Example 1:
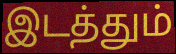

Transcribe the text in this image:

இடத்தும்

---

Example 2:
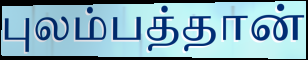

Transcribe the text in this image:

புலம்பத்தான்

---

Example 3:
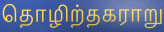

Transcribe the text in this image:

தொழிற்தகராறு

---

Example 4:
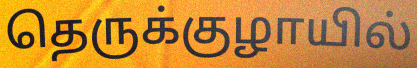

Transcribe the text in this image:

தெருக்குழாயில்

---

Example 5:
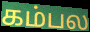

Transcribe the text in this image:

கம்பல